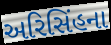
અરિસિંહના